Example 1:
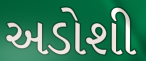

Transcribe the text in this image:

અડોશી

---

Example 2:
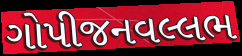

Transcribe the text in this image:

ગોપીજનવલ્લભ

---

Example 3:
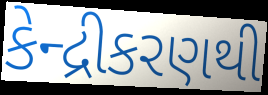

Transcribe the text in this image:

કેન્દ્રીકરણથી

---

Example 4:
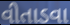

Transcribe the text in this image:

વીતાડવા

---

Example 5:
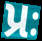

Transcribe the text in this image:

પ્રઃ